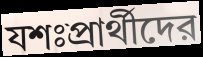
যশঃপ্রার্থীদের